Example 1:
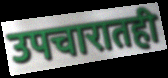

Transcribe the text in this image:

उपचारातही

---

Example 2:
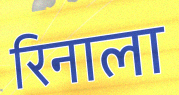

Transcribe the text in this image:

रिनाला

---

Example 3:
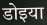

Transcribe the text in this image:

डोइया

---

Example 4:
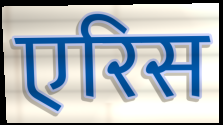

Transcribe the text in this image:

एरिस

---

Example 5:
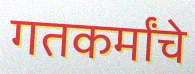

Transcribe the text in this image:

गतकर्मांचे